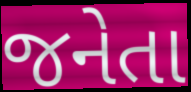
જનેતા